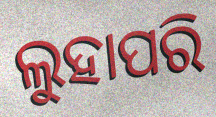
ଲୁହାପରି